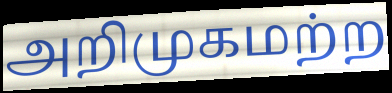
அறிமுகமற்ற